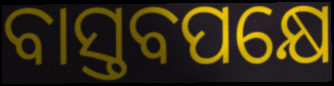
ବାସ୍ତବପକ୍ଷେ